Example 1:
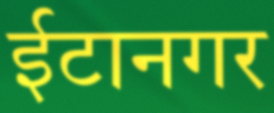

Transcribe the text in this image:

ईटानगर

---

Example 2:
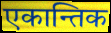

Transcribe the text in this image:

एकान्तिक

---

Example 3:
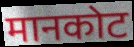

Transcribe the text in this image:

मानकोट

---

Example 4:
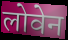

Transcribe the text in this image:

लोवेन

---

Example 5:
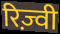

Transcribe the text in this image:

रिज़्वी